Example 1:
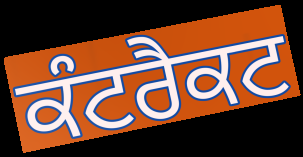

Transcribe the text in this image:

ਕੰਟਰੈਕਟ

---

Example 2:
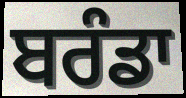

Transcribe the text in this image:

ਬਰੰਡਾ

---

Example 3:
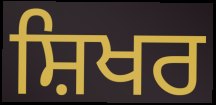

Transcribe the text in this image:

ਸ਼ਿਖਰ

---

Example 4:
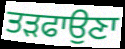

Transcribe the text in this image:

ਤੜਫਾਉਣਾ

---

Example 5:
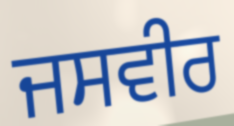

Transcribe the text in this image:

ਜਸਵੀਰ